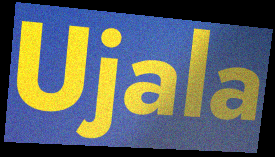
Ujala